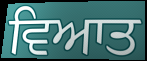
ਵਿਆਤ